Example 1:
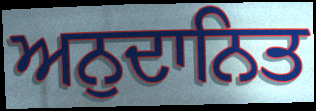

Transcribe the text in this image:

ਅਨੁਦਾਨਿਤ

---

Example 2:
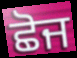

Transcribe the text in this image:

ਛੋਜ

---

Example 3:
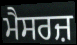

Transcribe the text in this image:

ਮੈਸਰਜ਼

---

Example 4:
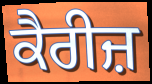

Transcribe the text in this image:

ਕੈਰੀਜ਼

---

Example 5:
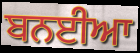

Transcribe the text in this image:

ਬਨਈਆ